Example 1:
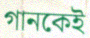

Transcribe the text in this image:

গানকেই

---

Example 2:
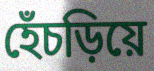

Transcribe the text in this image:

হেঁচড়িয়ে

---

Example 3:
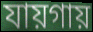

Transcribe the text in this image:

যায়গায়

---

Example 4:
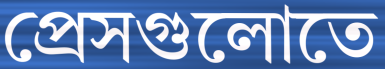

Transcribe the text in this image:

প্রেসগুলোতে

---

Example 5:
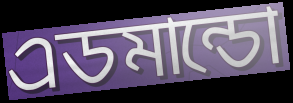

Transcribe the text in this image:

এডমান্ডো